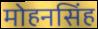
मोहनसिंह